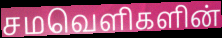
சமவெளிகளின்